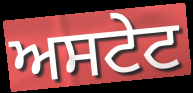
ਅਸਟੇਟ